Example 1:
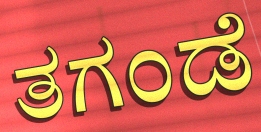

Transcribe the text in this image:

ತಗಂಡೆ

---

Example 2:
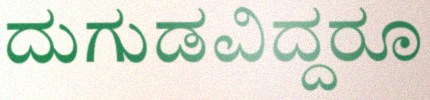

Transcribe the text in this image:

ದುಗುಡವಿದ್ದರೂ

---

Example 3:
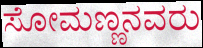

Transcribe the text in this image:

ಸೋಮಣ್ಣನವರು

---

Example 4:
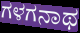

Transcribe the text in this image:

ಗಳಗನಾಥ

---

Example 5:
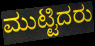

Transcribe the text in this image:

ಮುಟ್ಟಿದರು